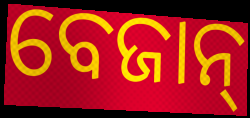
ବେଜାନ୍